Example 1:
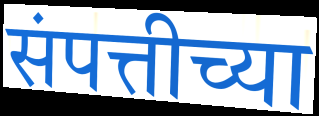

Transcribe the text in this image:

संपत्तीच्या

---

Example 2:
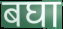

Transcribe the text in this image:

बघा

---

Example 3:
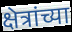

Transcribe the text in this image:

क्षेत्रांच्या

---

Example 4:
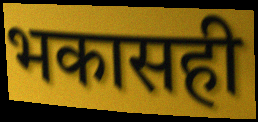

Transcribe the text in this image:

भकासही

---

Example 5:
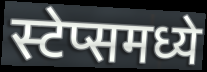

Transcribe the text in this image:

स्टेप्समध्ये